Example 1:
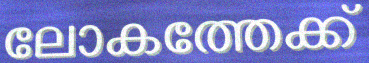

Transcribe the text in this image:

ലോകത്തേക്ക്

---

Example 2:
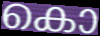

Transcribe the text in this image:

കൊ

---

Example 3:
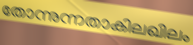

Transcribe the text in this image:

തോന്നുന്നതാകിലഖിലം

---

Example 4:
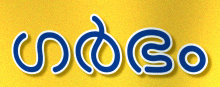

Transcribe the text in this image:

ഗർഭം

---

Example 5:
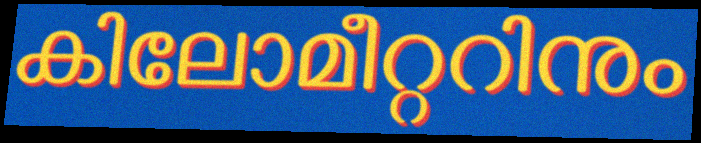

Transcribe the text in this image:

കിലോമീറ്ററിനും